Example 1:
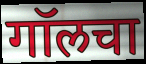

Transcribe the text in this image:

गॉलचा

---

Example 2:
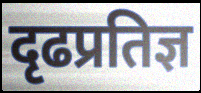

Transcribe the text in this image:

दृढप्रतिज्ञ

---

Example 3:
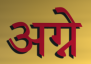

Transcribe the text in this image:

अग्ने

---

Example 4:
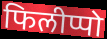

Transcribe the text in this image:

फिलीप्पो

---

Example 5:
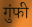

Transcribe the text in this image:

गुंफी